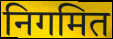
निगमित